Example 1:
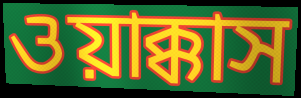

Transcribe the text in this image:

ওয়াক্কাস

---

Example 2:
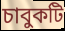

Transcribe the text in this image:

চাবুকটি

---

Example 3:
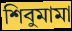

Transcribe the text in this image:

শিবুমামা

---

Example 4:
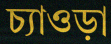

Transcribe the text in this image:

চ্যাওড়া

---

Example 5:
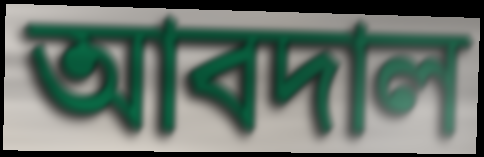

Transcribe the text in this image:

আবদাল